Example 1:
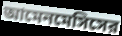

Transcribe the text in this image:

আমেনমেসিসের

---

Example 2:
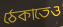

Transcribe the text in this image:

ঠেকাতেও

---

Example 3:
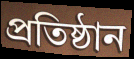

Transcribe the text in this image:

প্রতিষ্ঠান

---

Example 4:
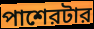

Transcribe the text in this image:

পাশেরটার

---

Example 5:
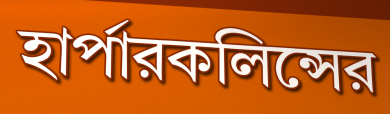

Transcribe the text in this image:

হার্পারকলিন্সের